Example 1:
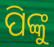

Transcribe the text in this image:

ପିଙ୍କୁ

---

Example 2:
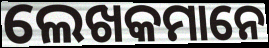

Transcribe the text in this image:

ଲେଖକମାନେ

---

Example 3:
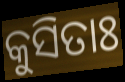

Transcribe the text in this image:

କୁସିତାଃ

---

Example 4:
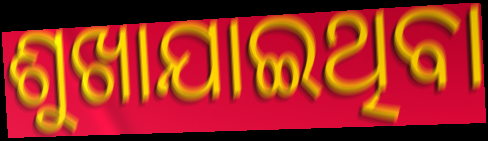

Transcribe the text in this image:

ଶୁଖାଯାଇଥିବା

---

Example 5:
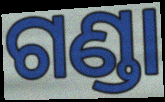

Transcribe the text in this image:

ଗଣ୍ଡା